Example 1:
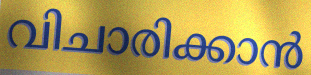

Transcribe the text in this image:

വിചാരിക്കാൻ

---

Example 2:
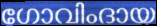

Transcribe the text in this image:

ഗോവിംദായ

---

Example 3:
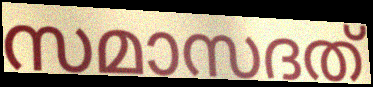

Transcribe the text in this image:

സമാസദത്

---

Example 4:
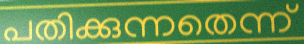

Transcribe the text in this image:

പതിക്കുന്നതെന്ന്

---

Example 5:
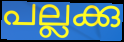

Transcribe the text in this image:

പല്ലക്കു